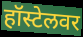
हॉस्टेलवर